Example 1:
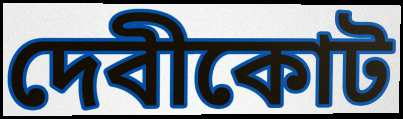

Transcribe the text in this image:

দেবীকোট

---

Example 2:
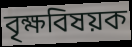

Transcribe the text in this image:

বৃক্ষবিষয়ক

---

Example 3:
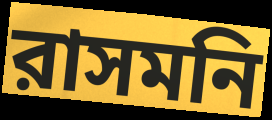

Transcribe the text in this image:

রাসমনি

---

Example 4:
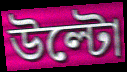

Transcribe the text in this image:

উল্টো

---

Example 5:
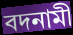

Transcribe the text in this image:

বদনামী